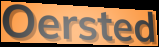
Oersted